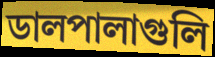
ডালপালাগুলি